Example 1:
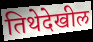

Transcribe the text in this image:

तिथेदेखील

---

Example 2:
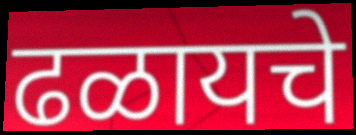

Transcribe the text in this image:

ढळायचे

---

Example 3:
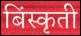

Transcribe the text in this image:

बिंस्कृती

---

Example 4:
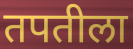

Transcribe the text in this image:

तपतीला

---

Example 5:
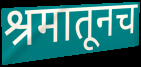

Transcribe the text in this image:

श्रमातूनच